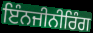
ਇੰਨਜੀਨੀਰਿੰਗ